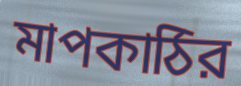
মাপকাঠির